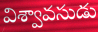
విశ్వావసుడు